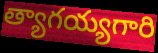
త్యాగయ్యగారి